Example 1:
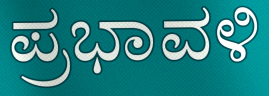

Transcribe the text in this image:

ಪ್ರಭಾವಳಿ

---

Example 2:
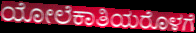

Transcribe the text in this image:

ಯೋಲೆಕಾತಿಯರೊಳಗೆ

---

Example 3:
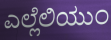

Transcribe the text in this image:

ಎಲ್ಲೆಲಿಯುಂ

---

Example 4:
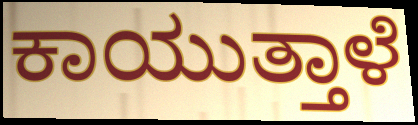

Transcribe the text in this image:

ಕಾಯುತ್ತಾಳೆ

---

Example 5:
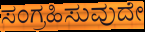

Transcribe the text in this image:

ಸಂಗ್ರಹಿಸುವುದೇ